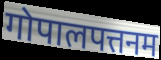
गोपालपत्तनम